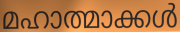
മഹാത്മാക്കൾ